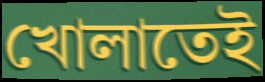
খোলাতেই